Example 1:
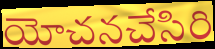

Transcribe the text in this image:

యోచనచేసిరి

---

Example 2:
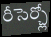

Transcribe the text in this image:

రీసెర్చ్లో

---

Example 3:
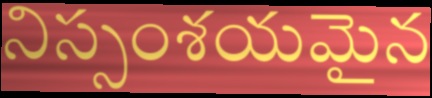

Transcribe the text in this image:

నిస్సంశయమైన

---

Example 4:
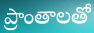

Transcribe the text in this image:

ప్రాంతాలతో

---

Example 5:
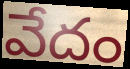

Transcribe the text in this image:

వేదం